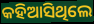
କହିଆସିଥିଲେ